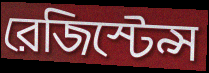
রেজিস্টেন্স